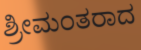
ಶ್ರೀಮಂತರಾದ